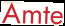
Amte